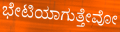
ಭೇಟಿಯಾಗುತ್ತೇವೋ